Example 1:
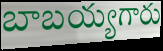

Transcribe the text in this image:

బాబయ్యగారు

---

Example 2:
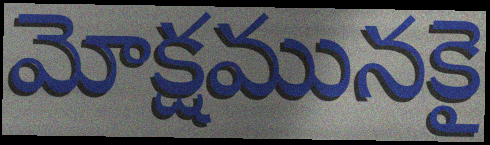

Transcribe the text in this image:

మోక్షమునకై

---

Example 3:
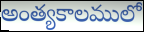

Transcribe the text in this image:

అంత్యకాలములో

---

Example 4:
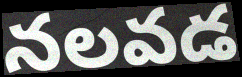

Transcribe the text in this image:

నలవడ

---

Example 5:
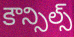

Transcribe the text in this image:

కౌన్సిల్స్